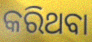
କରିଥବା